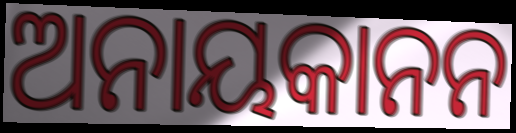
ଅନାୟକାନନ